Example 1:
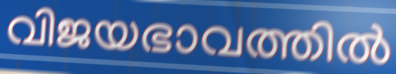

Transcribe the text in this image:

വിജയഭാവത്തിൽ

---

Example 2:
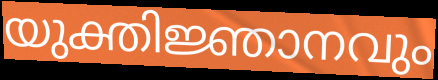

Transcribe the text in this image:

യുക്തിജ്ഞാനവും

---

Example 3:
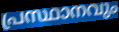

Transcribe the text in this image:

പ്രസ്ഥാനവും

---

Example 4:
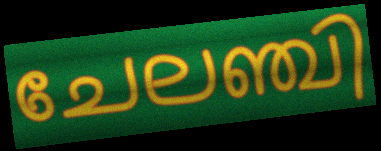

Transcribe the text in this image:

ചേലഞ്ചി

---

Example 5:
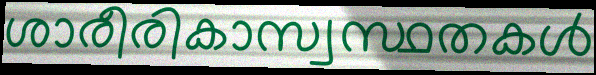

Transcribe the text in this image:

ശാരീരികാസ്വസ്ഥതകൾ